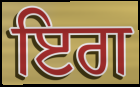
ਇਗ